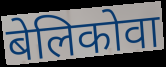
बेलिकोवा